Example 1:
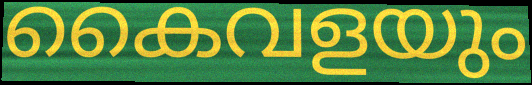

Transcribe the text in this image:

കൈവളയും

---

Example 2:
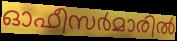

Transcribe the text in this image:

ഓഫീസർമാരിൽ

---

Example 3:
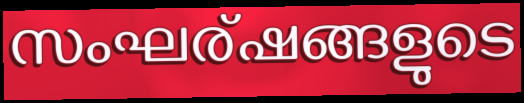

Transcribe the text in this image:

സംഘര്ഷങ്ങളുടെ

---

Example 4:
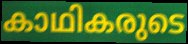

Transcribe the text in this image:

കാഥികരുടെ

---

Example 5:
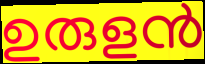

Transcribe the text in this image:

ഉരുളൻ